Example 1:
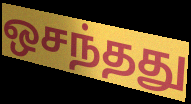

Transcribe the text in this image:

ஒசந்தது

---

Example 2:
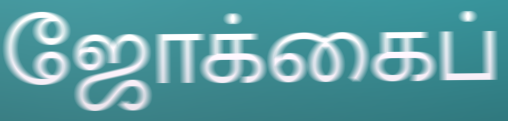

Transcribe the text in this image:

ஜோக்கைப்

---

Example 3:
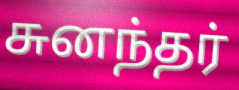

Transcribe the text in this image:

சுனந்தர்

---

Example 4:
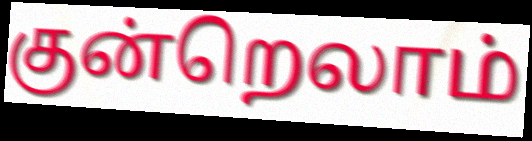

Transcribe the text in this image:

குன்றெலாம்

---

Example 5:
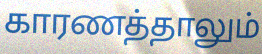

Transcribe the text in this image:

காரணத்தாலும்